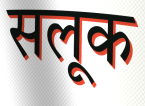
सलूक